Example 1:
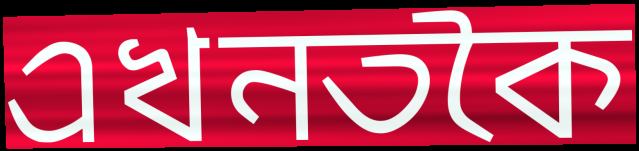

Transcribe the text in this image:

এখনতকৈ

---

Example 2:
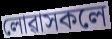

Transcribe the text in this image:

লোৱাসকলে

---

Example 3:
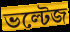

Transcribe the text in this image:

ভল্টেজ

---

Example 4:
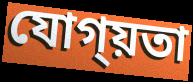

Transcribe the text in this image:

যোগ্য়তা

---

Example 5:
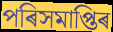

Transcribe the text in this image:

পৰিসমাপ্তিৰ